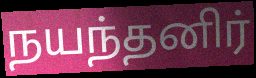
நயந்தனிர்